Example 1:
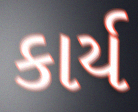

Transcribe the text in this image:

કાર્ય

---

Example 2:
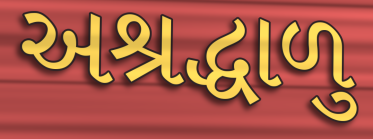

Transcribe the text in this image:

અશ્રદ્ધાળુ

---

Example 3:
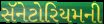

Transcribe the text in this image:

સૅનેટોરિયમની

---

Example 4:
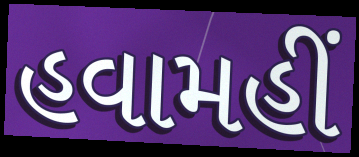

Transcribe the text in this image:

હવામહીં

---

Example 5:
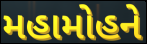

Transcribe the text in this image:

મહામોહને